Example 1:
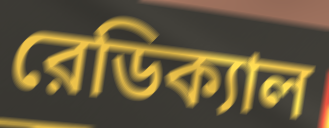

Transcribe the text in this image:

রেডিক্যাল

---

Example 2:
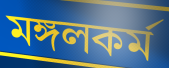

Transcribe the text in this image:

মঙ্গলকর্ম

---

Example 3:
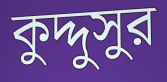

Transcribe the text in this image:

কুদ্দুসুর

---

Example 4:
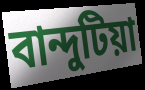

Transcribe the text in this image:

বান্দুটিয়া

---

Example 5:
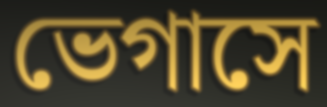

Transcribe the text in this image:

ভেগাসে